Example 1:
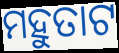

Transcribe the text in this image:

ମହୁତାଟ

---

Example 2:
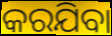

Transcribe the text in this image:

କରଯିବା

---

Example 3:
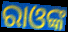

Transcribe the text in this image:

ରାଓଙ୍କ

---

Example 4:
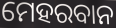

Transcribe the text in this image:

ମେହରବାନ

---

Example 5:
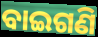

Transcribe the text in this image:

ବାଇଗଣି